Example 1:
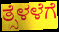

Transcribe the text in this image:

ತ್ಸೆಳಳೆಗೆ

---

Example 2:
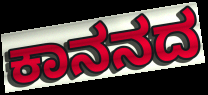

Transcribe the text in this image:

ಕಾನನದ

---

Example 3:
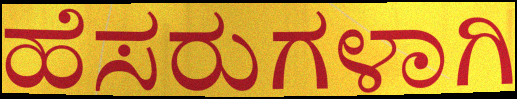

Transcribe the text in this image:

ಹೆಸರುಗಳಾಗಿ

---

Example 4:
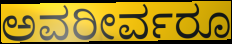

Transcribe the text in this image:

ಅವರೀರ್ವರೂ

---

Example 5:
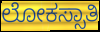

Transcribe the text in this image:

ಲೋಕಸ್ಸಾತಿ